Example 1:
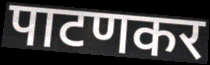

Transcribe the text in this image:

पाटणकर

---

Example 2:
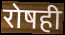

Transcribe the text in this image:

रोषही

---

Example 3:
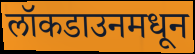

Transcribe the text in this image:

लॉकडाउनमधून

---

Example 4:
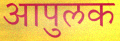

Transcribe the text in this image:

आपुलक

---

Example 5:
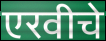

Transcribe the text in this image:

एरवीचे